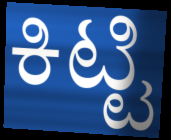
ಕಿಟ್ಟಿ